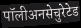
पॉलीअनसेचुरेटेड